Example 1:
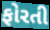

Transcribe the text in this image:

ફોરતી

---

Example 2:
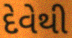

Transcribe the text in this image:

દેવેથી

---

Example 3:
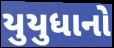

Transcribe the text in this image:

યુયુધાનો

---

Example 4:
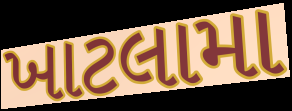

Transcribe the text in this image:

ખાટલામા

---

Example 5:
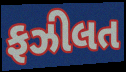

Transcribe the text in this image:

ફઝીલત